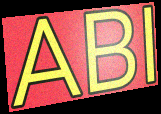
ABI